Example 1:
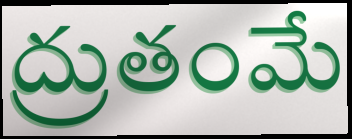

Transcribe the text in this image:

ద్రుతంమే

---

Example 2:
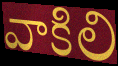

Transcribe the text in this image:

వాకిలి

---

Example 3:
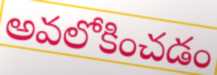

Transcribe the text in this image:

అవలోకించడం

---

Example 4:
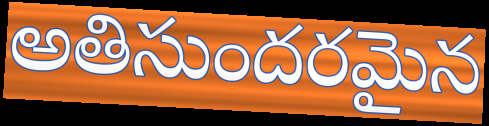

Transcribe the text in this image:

అతిసుందరమైన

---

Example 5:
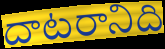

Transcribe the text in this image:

దాటరానిది